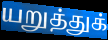
யறுத்துக்